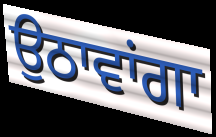
ਉਠਾਵਾਂਗਾ